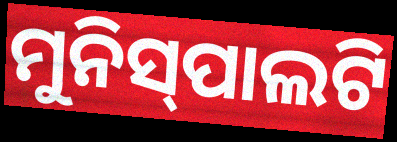
ମୁନିସ୍‍ପାଲଟି